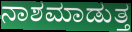
ನಾಶಮಾಡುತ್ತ